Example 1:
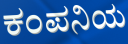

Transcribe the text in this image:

ಕಂಪನಿಯ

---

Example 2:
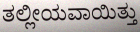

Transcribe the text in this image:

ತಲ್ಲೀಯವಾಯಿತ್ತು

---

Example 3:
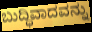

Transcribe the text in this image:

ಬುದ್ಧಿವಾದವನ್ನು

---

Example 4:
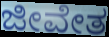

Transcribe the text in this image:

ಜೀವೇತ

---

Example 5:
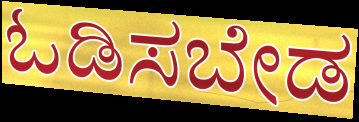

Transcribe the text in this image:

ಓಡಿಸಬೇಡ